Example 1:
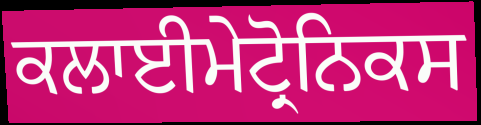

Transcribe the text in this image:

ਕਲਾਈਮੇਟ੍ਰੋਨਿਕਸ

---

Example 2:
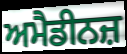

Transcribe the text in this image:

ਅਮੈਡੀਨਜ਼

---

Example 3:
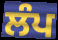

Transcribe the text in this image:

ਲੰਪ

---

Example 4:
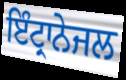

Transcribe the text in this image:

ਇੰਟ੍ਰਾਨੇਜਲ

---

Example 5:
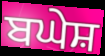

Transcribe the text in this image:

ਬਘੇਸ਼